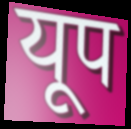
यूप